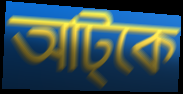
আট্‌কে